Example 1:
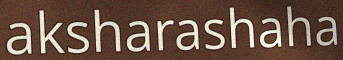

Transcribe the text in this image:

aksharashaha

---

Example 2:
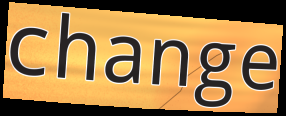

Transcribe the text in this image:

change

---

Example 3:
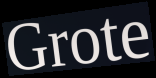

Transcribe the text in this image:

Grote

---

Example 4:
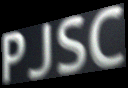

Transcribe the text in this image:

PJSC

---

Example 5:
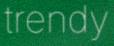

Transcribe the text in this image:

trendy